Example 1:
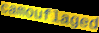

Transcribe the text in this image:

camouflaged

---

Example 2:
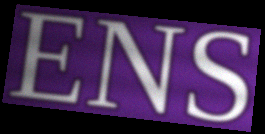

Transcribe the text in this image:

ENS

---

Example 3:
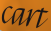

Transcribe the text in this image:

cart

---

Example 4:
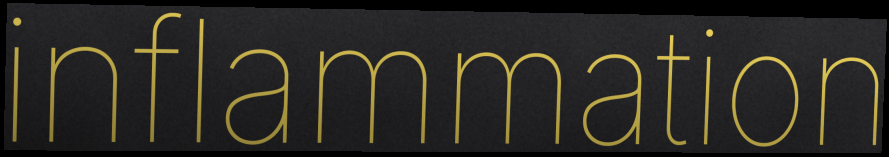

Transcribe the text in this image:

inflammation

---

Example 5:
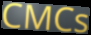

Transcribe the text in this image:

CMCs